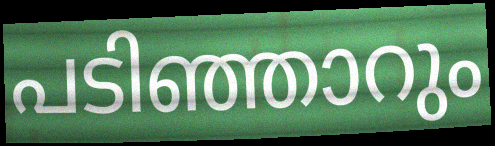
പടിഞ്ഞാറും